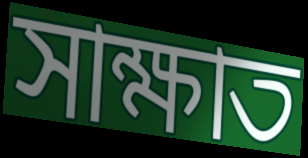
সাক্ষাত